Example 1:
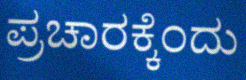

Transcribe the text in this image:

ಪ್ರಚಾರಕ್ಕೆಂದು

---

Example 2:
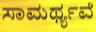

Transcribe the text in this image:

ಸಾಮರ್ಥ್ಯವೆ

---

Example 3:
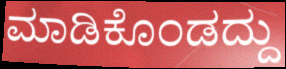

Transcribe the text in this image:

ಮಾಡಿಕೊಂಡದ್ದು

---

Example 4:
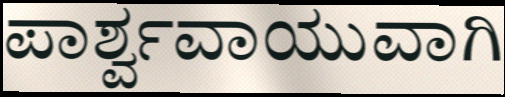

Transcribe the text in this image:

ಪಾರ್ಶ್ವವಾಯುವಾಗಿ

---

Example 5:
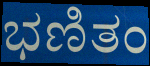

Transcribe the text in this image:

ಭಣಿತಂ